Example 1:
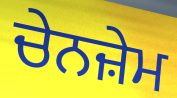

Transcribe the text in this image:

ਚੇਨਜ਼ੇਮ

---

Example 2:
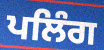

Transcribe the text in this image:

ਪਲਿੰਗ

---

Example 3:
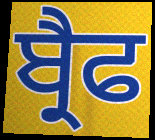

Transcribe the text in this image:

ਬ੍ਰੈਫ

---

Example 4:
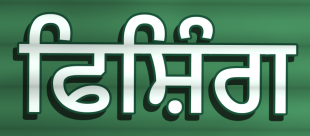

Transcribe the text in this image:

ਫਿਸ਼ਿੰਗ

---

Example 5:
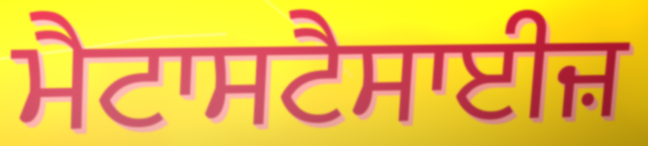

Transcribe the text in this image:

ਮੈਟਾਸਟੈਸਾਈਜ਼